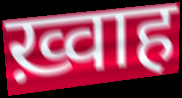
ख़्वाह